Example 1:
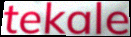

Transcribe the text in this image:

tekale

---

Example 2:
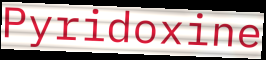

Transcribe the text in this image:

Pyridoxine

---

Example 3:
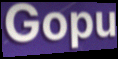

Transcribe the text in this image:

Gopu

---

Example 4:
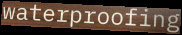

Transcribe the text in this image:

waterproofing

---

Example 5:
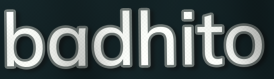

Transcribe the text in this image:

badhito